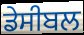
ਡੇਸੀਬਲ